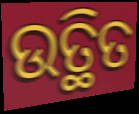
ଉତ୍ଥିତ